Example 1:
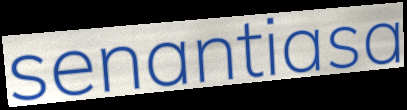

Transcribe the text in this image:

senantiasa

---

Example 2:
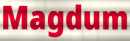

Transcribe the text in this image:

Magdum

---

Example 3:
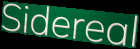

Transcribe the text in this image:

Sidereal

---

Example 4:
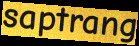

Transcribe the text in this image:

saptrang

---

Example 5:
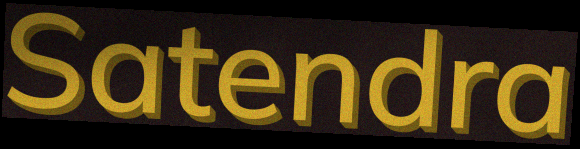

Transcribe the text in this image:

Satendra